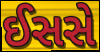
ઈસસે